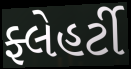
ફ્લેહર્ટી